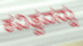
ಕವಿತ್ವವನ್ನು